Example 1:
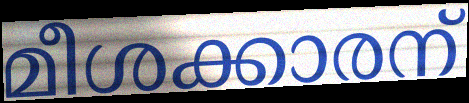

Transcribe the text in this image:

മീശക്കാരന്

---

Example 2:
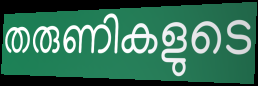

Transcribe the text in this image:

തരുണികളുടെ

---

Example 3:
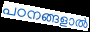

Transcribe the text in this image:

പഠനങ്ങളാൽ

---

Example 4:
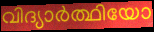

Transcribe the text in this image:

വിദ്യാർത്ഥിയോ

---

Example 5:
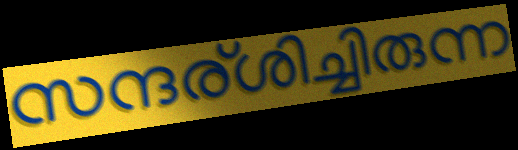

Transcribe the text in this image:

സന്ദര്ശിച്ചിരുന്ന